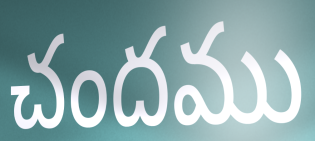
చందము